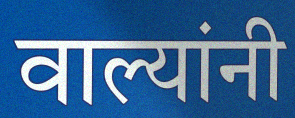
वाल्यांनी